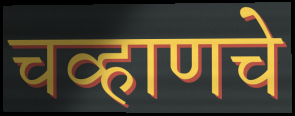
चव्हाणचे